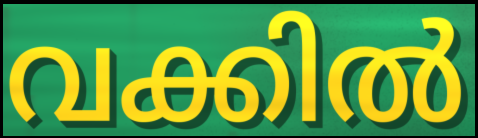
വക്കിൽ